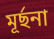
মূর্ছনা